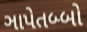
ઞાપેતબ્બો